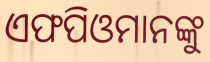
ଏଫପିଓମାନଙ୍କୁ